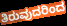
ತಿರುವುದರಿಂದ